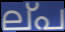
ല്‌പ